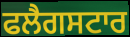
ਫਲੈਗਸਟਾਰ